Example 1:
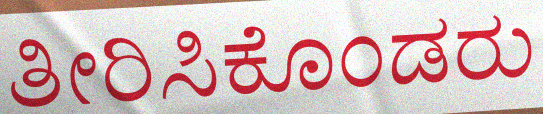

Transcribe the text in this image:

ತೀರಿಸಿಕೊಂಡರು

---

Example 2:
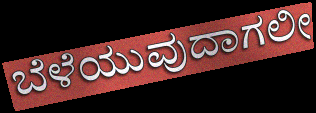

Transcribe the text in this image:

ಬೆಳೆಯುವುದಾಗಲೀ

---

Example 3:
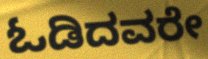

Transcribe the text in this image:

ಓಡಿದವರೇ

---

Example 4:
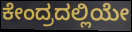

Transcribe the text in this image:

ಕೇಂದ್ರದಲ್ಲಿಯೇ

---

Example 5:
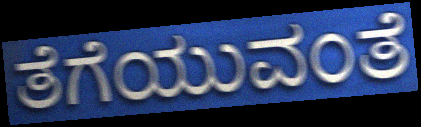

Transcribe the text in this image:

ತೆಗೆಯುವಂತೆ